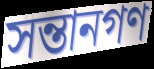
সন্তানগণ